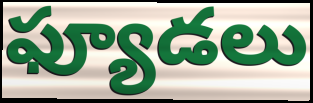
ఫ్యూడలు